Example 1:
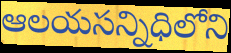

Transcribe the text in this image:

ఆలయసన్నిధిలోని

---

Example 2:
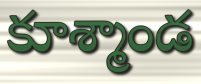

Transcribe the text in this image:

కూశ్మాండ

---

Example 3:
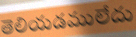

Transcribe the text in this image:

తెలియడములేదు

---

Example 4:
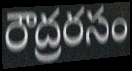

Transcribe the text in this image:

రౌద్రరసం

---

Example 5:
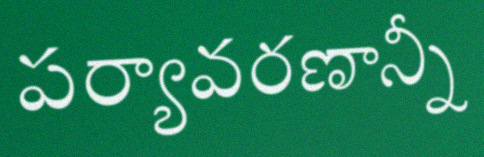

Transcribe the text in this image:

పర్యావరణాన్నీ